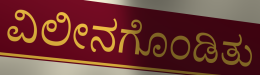
ವಿಲೀನಗೊಂಡಿತು